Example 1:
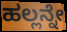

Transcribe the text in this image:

ಹಲ್ಲನ್ನೇ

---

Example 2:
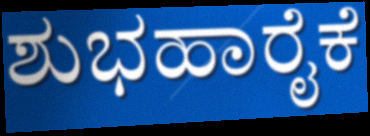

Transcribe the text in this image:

ಶುಭಹಾರೈಕೆ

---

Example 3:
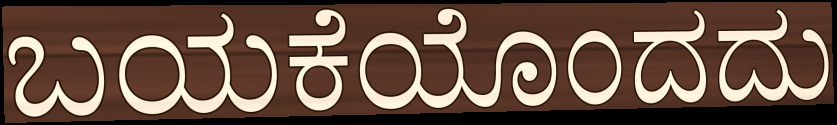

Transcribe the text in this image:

ಬಯಕೆಯೊಂದದು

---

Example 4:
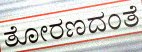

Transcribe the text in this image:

ತೋರಣದಂತೆ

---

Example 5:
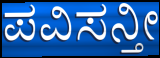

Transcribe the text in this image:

ಪವಿಸನ್ತೀ